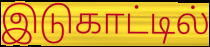
இடுகாட்டில்